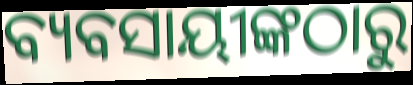
ବ୍ୟବସାୟୀଙ୍କଠାରୁ